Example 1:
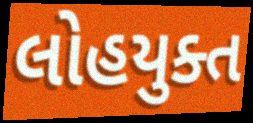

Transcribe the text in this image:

લોહયુક્ત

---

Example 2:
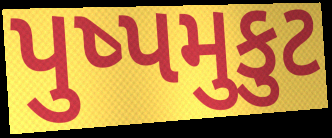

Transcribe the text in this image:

પુષ્પમુકુટ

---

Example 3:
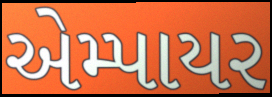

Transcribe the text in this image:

એમ્પાયર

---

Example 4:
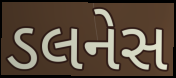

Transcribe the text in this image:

ડલનેસ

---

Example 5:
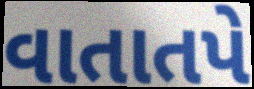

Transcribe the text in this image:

વાતાતપે